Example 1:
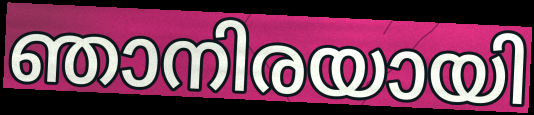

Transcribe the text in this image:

ഞാനിരയായി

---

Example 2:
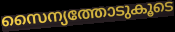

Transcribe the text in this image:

സൈന്യത്തോടുകൂടെ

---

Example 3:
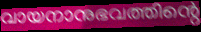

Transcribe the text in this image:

വായനാനുഭവത്തിന്റെ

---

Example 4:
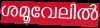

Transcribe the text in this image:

ശമൂവേലിൽ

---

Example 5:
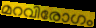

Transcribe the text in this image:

മറവിരോഗം